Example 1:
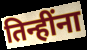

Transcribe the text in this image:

तिन्हींना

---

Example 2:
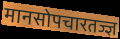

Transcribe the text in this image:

मानसोपचारतज्ज्ञ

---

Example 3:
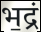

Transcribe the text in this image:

भ॒द्रं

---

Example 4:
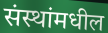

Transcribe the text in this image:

संस्थांमधील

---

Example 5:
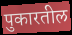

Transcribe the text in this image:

पुकारतील